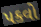
પકવો